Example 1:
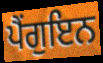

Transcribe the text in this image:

ਪੈਂਗੁਇਨ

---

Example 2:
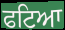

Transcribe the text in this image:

ਫਟਿਆ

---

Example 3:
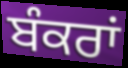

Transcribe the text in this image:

ਬੰਕਰਾਂ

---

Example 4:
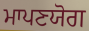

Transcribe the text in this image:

ਮਾਪਣਯੋਗ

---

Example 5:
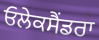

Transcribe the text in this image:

ਓਲੇਕਸੈਂਡਰਾ